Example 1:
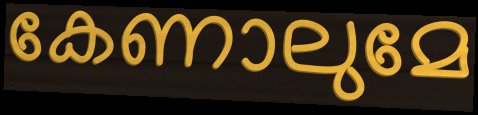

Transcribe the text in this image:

കേണാലുമേ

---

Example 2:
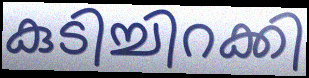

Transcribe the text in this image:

കുടിച്ചിറക്കി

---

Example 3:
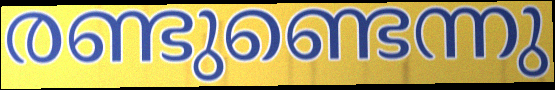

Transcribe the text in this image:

രണ്ടുണ്ടെന്നു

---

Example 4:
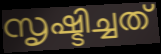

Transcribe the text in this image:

സൃഷ്ടിച്ചത്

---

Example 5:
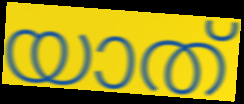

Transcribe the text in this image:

യാത്